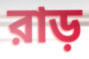
রাড়